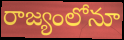
రాజ్యంలోనూ